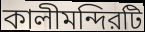
কালীমন্দিরটি